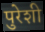
पुरेशी